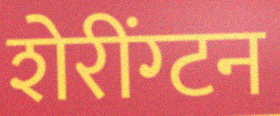
शेरींग्टन